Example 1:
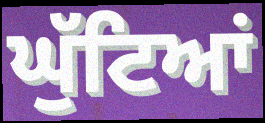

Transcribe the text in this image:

ਘੁੱਟਿਆਂ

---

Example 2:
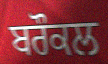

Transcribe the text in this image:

ਬਰੌਕਲ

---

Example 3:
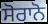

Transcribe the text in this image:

ਸੋਰਾਨੋ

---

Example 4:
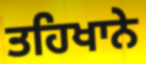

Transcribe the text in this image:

ਤਹਿਖਾਨੇ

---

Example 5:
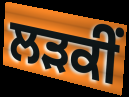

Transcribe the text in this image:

ਲੜਕੀਂ